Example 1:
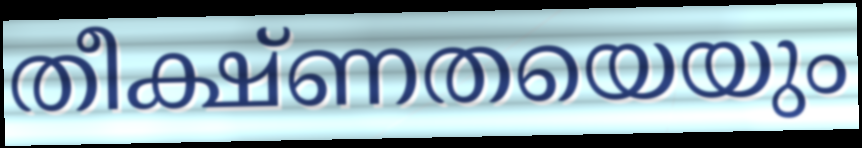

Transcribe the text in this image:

തീക്ഷ്ണതയെയും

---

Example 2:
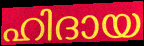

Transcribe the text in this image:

ഹിദായ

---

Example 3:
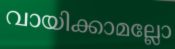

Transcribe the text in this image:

വായിക്കാമല്ലോ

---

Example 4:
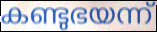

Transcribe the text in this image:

കണ്ടുഭയന്ന്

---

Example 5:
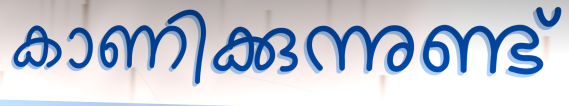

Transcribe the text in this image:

കാണിക്കുന്നുണ്ട്